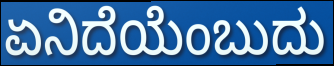
ಏನಿದೆಯೆಂಬುದು